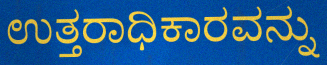
ಉತ್ತರಾಧಿಕಾರವನ್ನು